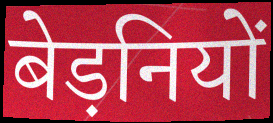
बेड़नियों